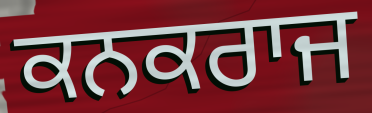
ਕਨਕਰਾਜ